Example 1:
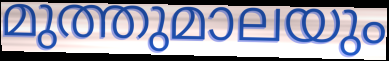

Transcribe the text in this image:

മുത്തുമാലയും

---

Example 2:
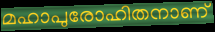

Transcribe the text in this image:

മഹാപുരോഹിതനാണ്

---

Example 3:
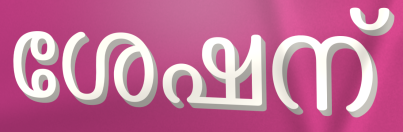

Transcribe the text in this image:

ശേഷന്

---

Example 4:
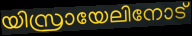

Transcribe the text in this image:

യിസ്രായേലിനോട്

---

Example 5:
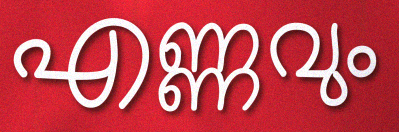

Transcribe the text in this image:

എണ്ണവും